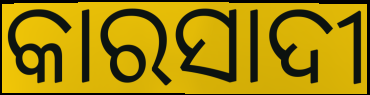
କାରସାଦୀ